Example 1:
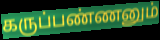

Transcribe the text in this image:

கருப்பண்ணனும்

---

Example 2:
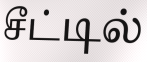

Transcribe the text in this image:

சீட்டில்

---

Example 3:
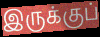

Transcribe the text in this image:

இருக்குப்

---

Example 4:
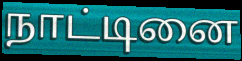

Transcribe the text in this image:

நாட்டினை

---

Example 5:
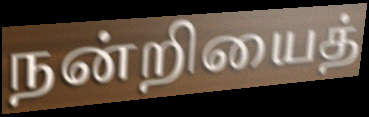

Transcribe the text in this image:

நன்றியைத்